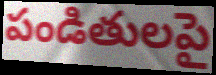
పండితులపై